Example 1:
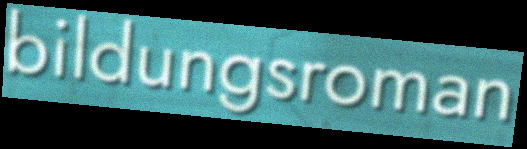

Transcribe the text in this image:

bildungsroman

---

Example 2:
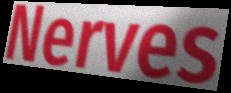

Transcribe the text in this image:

Nerves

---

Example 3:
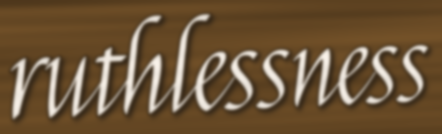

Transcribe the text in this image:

ruthlessness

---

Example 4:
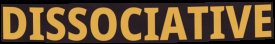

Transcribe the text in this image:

DISSOCIATIVE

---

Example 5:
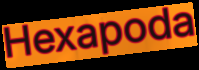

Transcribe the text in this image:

Hexapoda